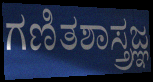
ಗಣಿತಶಾಸ್ತ್ರಜ್ಞ